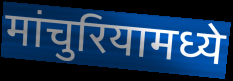
मांचुरियामध्ये